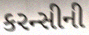
કરન્સીની